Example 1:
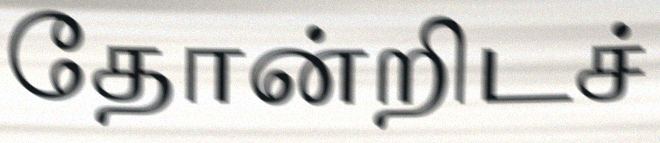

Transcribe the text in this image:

தோன்றிடச்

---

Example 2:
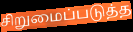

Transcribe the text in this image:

சிறுமைப்படுத்த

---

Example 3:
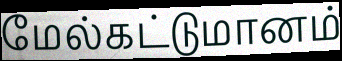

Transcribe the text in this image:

மேல்கட்டுமானம்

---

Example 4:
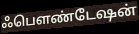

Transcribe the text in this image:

ஃபௌண்டேஷன்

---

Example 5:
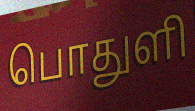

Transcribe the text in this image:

பொதுளி